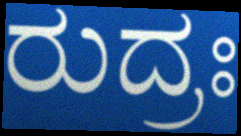
ರುದ್ರಃ